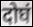
दोघं